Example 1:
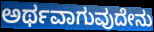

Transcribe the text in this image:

ಅರ್ಥವಾಗುವುದೇನು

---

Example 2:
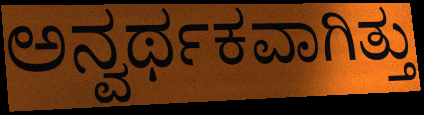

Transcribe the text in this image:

ಅನ್ವರ್ಥಕವಾಗಿತ್ತು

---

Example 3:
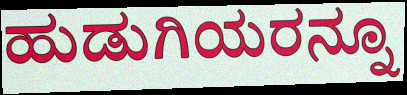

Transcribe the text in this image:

ಹುಡುಗಿಯರನ್ನೂ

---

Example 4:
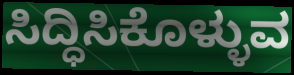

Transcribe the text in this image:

ಸಿದ್ಧಿಸಿಕೊಳ್ಳುವ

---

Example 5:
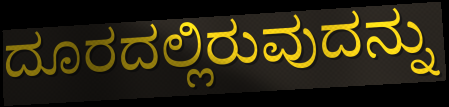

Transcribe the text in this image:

ದೂರದಲ್ಲಿರುವುದನ್ನು